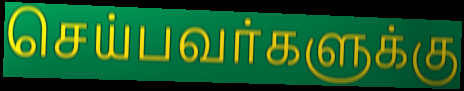
செய்பவர்களுக்கு